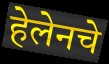
हेलेनचे